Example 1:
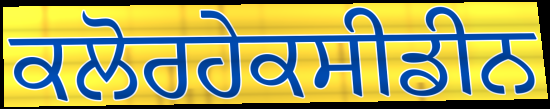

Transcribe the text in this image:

ਕਲੋਰਹੇਕਸੀਡੀਨ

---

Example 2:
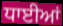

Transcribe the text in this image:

ਧਾਈਆਂ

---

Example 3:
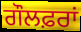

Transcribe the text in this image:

ਗੌਲਫ਼ਰਾਂ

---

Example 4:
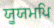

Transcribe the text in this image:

ਯੂਯਮਪਿ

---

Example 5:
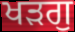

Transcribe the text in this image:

ਖੜਗੁ